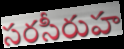
సరసీరుహ